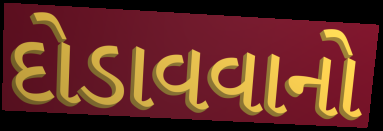
દોડાવવાનો